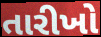
તારીખો